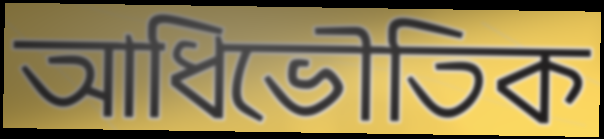
আধিভৌতিক